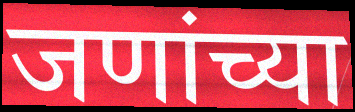
जणांच्या